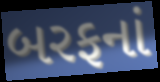
બરફનાં